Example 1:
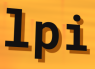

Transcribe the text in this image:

lpi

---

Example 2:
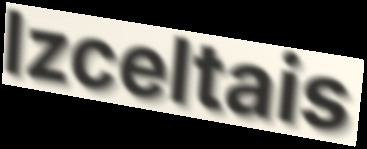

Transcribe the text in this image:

Izceltais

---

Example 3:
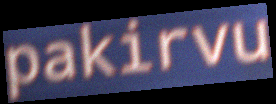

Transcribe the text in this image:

pakirvu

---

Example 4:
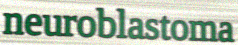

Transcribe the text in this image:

neuroblastoma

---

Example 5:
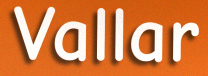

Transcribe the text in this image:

Vallar